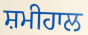
ਸ਼ਮੀਹਾਲ